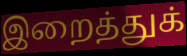
இறைத்துக்